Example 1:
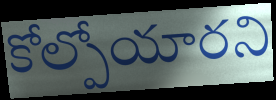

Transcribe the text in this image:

కోల్పోయారని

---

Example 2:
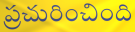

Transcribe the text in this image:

ప్రచురించింది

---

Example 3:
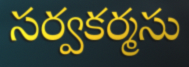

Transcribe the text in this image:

సర్వకర్మసు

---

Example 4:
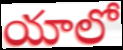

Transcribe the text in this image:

యాలో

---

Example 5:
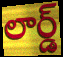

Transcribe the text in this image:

లార్డ్